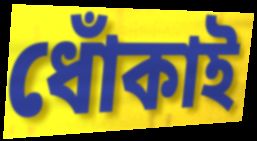
ধোঁকাই